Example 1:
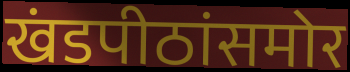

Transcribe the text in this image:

खंडपीठांसमोर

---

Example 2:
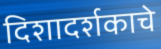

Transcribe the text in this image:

दिशादर्शकाचे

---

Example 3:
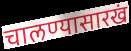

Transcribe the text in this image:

चालण्यासारखं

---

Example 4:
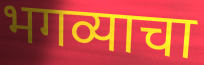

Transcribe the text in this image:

भगव्याचा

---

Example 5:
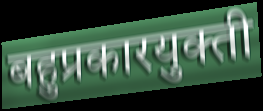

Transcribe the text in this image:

बहुप्रकारयुक्ती